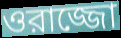
ওরাজ্জো